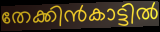
തേക്കിൻകാട്ടിൽ